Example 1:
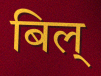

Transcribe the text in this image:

बिल्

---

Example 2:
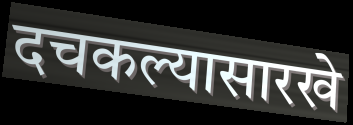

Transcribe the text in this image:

दचकल्यासारखे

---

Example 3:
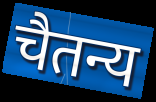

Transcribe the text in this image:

चैतन्य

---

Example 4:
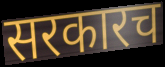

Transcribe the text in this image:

सरकारच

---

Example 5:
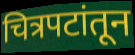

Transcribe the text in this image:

चित्रपटांतून